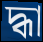
দ্ধা